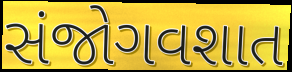
સંજોગવશાત